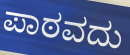
ಪಾಠವದು